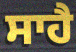
ਸਾਹੈ